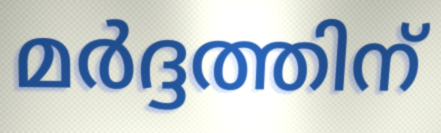
മർദ്ദത്തിന്